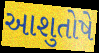
આશુતોષે